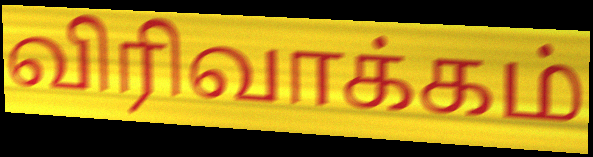
விரிவாக்கம்